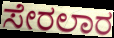
ಸೇರಲಾರ